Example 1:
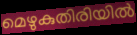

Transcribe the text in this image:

മെഴുകുതിരിയിൽ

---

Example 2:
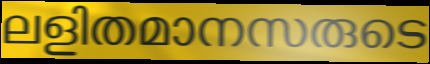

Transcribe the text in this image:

ലളിതമാനസരുടെ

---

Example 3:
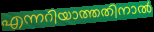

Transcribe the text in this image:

എന്നറിയാത്തതിനാൽ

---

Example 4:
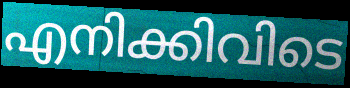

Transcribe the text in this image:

എനിക്കിവിടെ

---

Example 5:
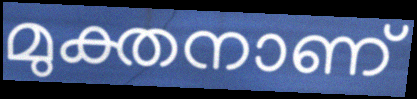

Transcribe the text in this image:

മുക്തനാണ്